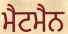
ਮੈਟਮੈਨ